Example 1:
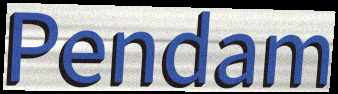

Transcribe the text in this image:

Pendam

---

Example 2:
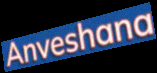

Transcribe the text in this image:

Anveshana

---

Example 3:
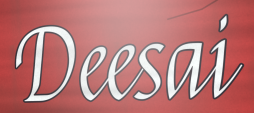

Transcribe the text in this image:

Deesai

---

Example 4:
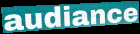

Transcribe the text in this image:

audiance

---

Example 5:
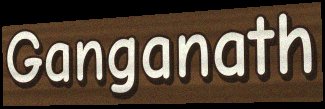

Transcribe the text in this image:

Ganganath